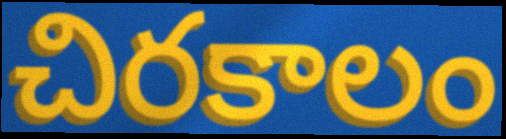
చిరకాలం